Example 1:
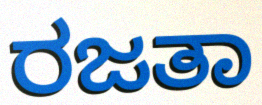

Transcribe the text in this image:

ರಜತಾ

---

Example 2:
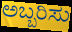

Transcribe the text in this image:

ಅಬ್ಬರಿಸು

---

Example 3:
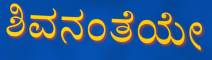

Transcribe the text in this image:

ಶಿವನಂತೆಯೇ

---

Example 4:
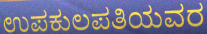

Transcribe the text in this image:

ಉಪಕುಲಪತಿಯವರ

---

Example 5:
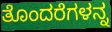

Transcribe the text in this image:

ತೊಂದರೆಗಳನ್ನ